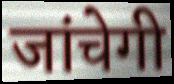
जांचेगी